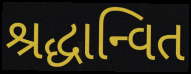
શ્રદ્ધાન્વિત